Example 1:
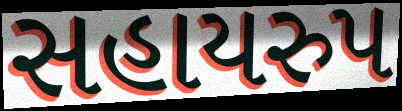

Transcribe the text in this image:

સહાયરુપ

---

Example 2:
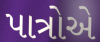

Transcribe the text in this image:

પાત્રોએ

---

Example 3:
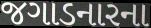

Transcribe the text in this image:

જગાડનારના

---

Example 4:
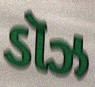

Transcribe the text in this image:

ડૉઝ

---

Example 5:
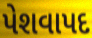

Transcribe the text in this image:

પેશવાપદ